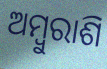
ଅମ୍ୱୁରାଶି